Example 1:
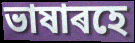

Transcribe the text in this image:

ভাষাৰহে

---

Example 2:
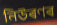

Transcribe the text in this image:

নিউৰণৰ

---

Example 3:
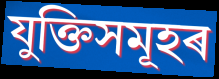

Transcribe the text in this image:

যুক্তিসমূহৰ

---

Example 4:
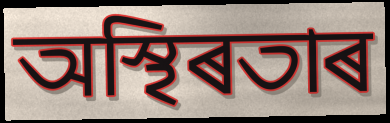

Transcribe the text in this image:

অস্থিৰতাৰ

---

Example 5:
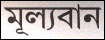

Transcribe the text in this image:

মূল্যবান